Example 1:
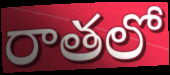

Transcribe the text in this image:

రాతలో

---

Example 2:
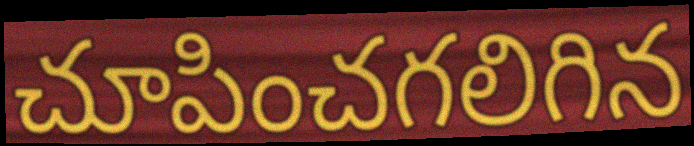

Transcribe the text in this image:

చూపించగలిగిన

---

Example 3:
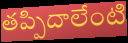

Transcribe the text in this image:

తప్పిదాలేంటి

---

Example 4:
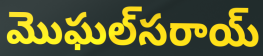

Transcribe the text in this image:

మొఘల్‌సరాయ్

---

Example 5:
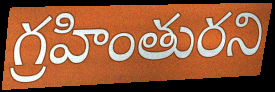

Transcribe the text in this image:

గ్రహింతురని